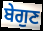
ਬੇਗੁਣ